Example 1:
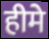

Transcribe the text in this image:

हीमे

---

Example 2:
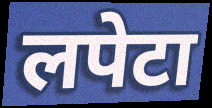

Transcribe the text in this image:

लपेटा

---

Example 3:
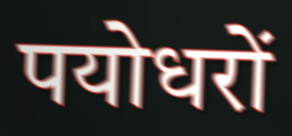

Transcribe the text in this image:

पयोधरों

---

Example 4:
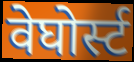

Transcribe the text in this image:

वेघोर्स्ट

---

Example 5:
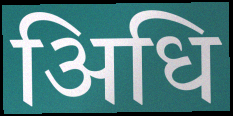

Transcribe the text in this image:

अिधि